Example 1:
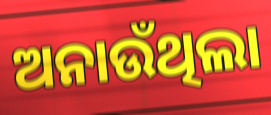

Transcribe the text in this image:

ଅନାଉଁଥିଲା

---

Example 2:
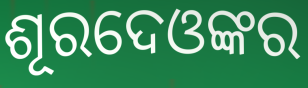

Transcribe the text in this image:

ଶୂରଦେଓଙ୍କର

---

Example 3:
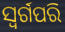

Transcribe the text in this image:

ସ୍ୱର୍ଗପରି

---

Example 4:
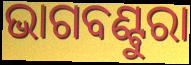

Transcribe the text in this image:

ଭାଗବଣ୍ଟୁରା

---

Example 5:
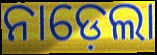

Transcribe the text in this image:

ନାଡ଼େଲା